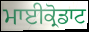
ਮਾਈਕ੍ਰੋਡਾਟ